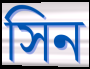
সিন